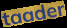
taader